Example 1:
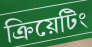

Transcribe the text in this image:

ক্রিয়েটিং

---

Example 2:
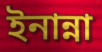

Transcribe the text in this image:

ইনান্না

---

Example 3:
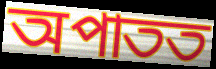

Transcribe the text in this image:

অপাতত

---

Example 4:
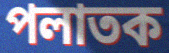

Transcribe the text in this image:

পলাতক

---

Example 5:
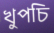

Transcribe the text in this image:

খুপচি